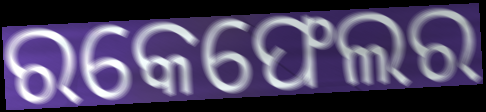
ରକେଫେଲର